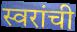
स्वरांची